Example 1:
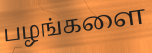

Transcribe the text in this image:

பழங்களை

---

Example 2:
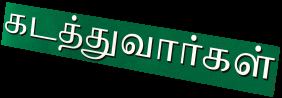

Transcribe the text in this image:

கடத்துவார்கள்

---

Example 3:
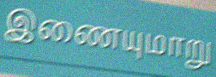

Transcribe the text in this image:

இணையுமாறு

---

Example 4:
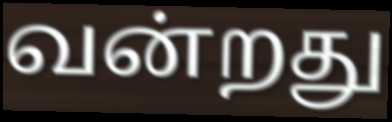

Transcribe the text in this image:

வன்றது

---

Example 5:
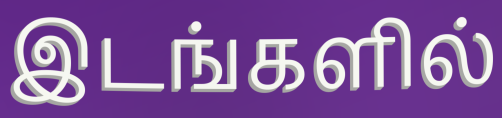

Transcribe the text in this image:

இடங்களில்